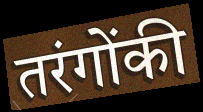
तरंगोंकी